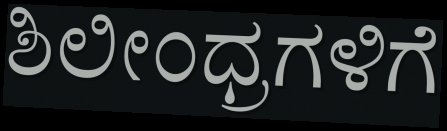
ಶಿಲೀಂಧ್ರಗಳಿಗೆ